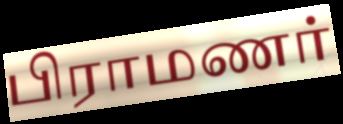
பிராமணர்